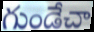
గుండేచా